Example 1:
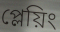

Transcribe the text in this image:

প্লেয়িং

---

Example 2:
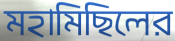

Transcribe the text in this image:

মহামিছিলের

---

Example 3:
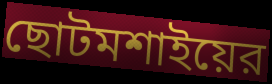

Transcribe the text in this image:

ছোটমশাইয়ের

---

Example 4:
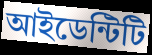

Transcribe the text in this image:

আইডেন্টিটি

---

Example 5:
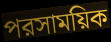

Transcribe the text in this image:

পরসাময়িক